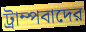
ট্রাম্পবাদের